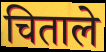
चिताले